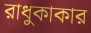
রাধুকাকার